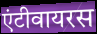
एंटीवायरस